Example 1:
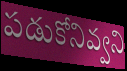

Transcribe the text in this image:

పడుకోనివ్వని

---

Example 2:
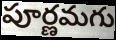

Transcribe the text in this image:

పూర్ణమగు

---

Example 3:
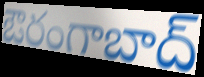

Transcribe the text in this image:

ఔరంగాబాద్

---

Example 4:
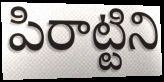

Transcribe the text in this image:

పిరాట్టిని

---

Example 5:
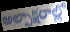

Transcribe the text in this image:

అల్పాక్షరాల్లో